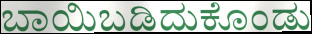
ಬಾಯಿಬಡಿದುಕೊಂಡು